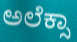
ಅಲೆಕ್ಸಾ